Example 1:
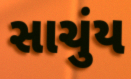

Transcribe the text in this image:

સાચુંય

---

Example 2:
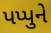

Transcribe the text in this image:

પપ્પુને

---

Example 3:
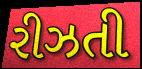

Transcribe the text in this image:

રીઝતી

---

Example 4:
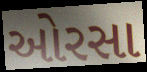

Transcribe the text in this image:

ઓરસા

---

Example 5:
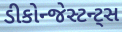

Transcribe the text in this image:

ડીકોન્જેસ્ટન્ટ્સ